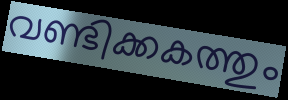
വണ്ടിക്കകത്തും